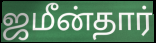
ஜமீன்தார்